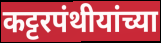
कट्टरपंथीयांच्या